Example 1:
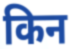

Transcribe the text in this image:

किन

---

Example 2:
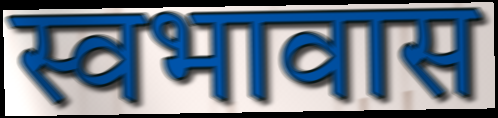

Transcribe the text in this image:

स्वभावास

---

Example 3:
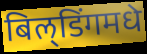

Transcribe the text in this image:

बिल्डिंगमधे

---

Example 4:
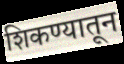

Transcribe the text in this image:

शिकण्यातून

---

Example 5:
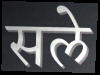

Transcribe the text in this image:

सले